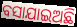
ବସାଯାଇଅଛି